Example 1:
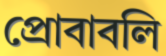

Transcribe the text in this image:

প্রোবাবলি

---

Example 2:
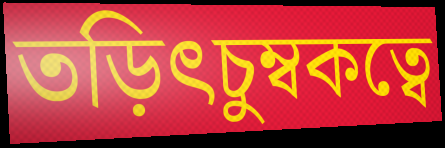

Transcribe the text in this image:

তড়িৎচুম্বকত্বে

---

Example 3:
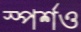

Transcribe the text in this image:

স্পর্শও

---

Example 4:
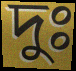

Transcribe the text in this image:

দুঃ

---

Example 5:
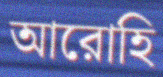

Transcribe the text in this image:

আরোহি